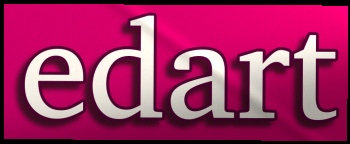
edart